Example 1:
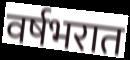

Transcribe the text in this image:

वर्षभरात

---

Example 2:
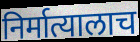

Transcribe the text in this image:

निर्मात्यालाच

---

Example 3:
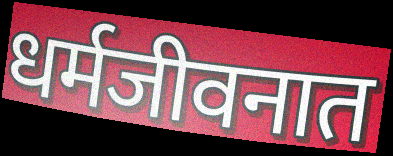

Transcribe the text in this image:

धर्मजीवनात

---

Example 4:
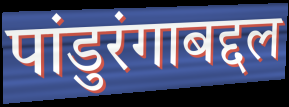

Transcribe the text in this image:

पांडुरंगाबद्दल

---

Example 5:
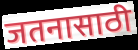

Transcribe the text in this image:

जतनासाठी